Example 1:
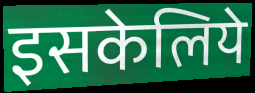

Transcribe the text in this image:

इसकेलिये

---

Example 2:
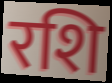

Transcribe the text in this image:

रशि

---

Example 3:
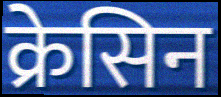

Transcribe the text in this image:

क्रेसिन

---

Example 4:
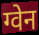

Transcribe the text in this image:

ग्वेन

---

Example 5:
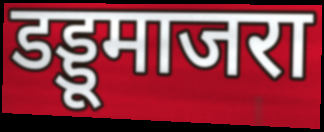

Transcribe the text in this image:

डड्डूमाजरा